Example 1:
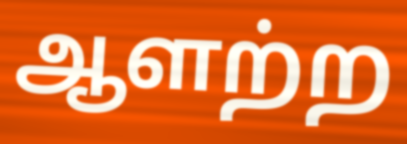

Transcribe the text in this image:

ஆளற்ற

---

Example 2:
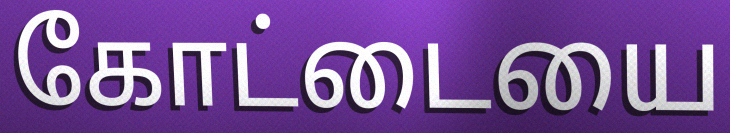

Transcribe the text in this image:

கோட்டையை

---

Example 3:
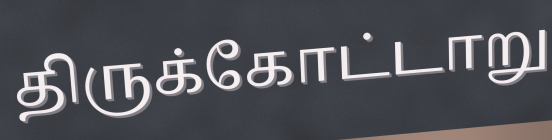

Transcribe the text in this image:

திருக்கோட்டாறு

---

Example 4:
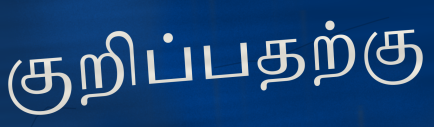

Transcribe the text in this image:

குறிப்பதற்கு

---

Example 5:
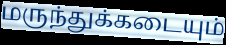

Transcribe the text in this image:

மருந்துக்கடையும்